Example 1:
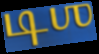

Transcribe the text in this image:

டிஶ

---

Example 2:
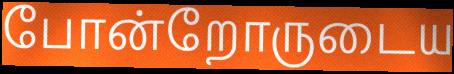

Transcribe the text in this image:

போன்றோருடைய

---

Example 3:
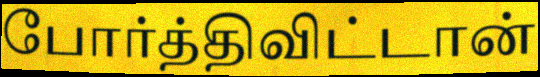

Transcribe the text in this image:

போர்த்திவிட்டான்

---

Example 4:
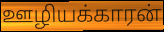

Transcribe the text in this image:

ஊழியக்காரன்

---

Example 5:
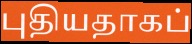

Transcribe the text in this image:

புதியதாகப்